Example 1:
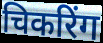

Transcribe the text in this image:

चिकरिंग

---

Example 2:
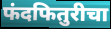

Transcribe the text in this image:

फंदफितुरीचा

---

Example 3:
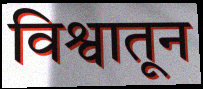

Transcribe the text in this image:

विश्वातून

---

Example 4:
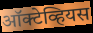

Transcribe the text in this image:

ऑक्टेव्हियस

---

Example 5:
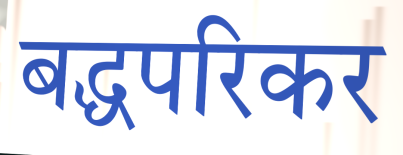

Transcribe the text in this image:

बद्धपरिकर